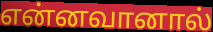
என்னவானால்